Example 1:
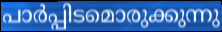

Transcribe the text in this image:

പാർപ്പിടമൊരുക്കുന്നു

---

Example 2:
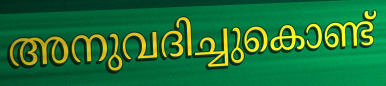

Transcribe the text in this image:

അനുവദിച്ചുകൊണ്ട്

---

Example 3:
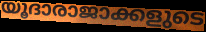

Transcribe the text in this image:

യൂദാരാജാക്കളുടെ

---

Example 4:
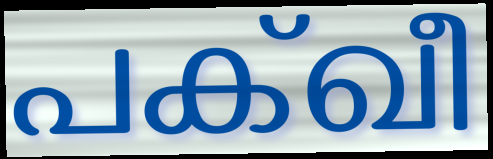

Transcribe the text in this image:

പക്ഖീ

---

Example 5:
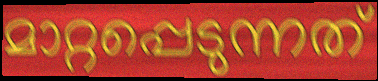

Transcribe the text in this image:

മാറ്റപ്പെടുന്നത്